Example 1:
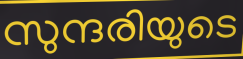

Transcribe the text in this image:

സുന്ദരിയുടെ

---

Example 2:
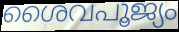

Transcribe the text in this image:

ശൈവപൂജ്യം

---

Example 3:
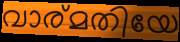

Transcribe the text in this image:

വാര്മതിയേ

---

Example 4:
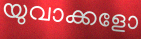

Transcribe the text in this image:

യുവാക്കളോ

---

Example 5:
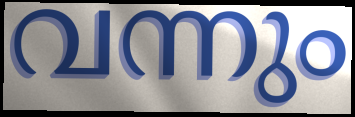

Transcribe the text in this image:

വന്നും